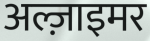
अल्ज़ाइमर